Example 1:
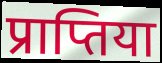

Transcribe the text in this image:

प्राप्तिया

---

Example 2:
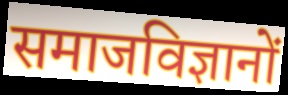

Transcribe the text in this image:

समाजविज्ञानों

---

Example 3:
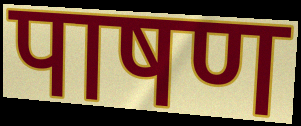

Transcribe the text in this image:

पाषण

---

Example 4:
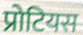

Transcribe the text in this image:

प्रोटियस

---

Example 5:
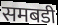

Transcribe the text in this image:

समबडी